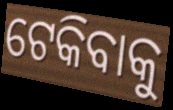
ଟେକିବାକୁ